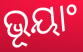
ଭୂୟାଂ